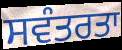
ਸਵੰਤਰਤਾ